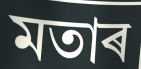
মতাৰ